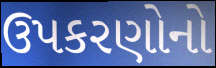
ઉપકરણોનો